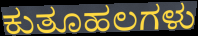
ಕುತೂಹಲಗಳು